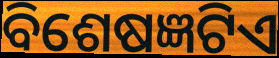
ବିଶେଷଜ୍ଞଟିଏ